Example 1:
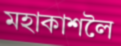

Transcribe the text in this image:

মহাকাশলৈ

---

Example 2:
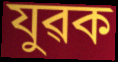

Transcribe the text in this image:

যুৱক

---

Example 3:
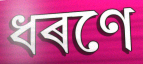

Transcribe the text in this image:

ধৰণে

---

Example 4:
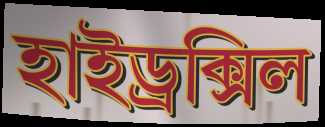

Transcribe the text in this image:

হাইড্ৰক্সিল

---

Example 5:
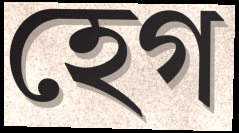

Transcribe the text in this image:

হেগ